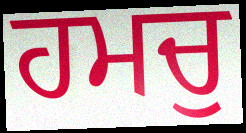
ਹਮਚੁ